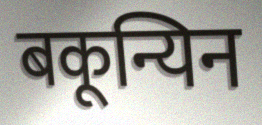
बकून्यिन